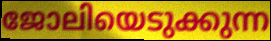
ജോലിയെടുക്കുന്ന